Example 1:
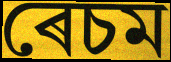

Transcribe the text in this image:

ৰেচম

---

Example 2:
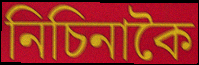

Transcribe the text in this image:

নিচিনাকৈ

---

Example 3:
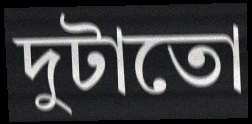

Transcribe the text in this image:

দুটাতো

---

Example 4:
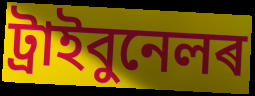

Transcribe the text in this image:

ট্ৰাইবুনেলৰ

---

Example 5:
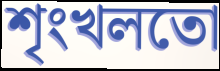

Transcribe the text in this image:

শৃংখলতো